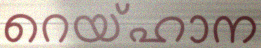
റെയ്ഹാന